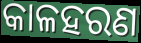
କାଳହରଣ